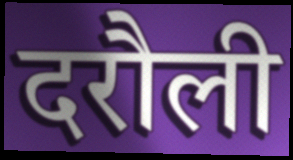
दरौली